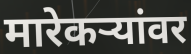
मारेकऱ्यांवर